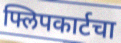
फ्लिपकार्टचा